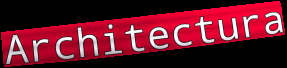
Architectura